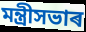
মন্ত্ৰীসভাৰ